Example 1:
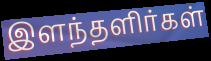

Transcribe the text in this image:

இளந்தளிர்கள்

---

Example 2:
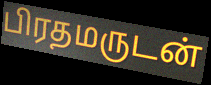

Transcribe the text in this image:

பிரதமருடன்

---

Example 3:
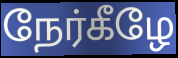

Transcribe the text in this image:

நேர்கீழே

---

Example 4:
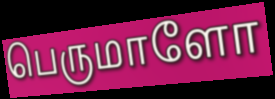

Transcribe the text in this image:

பெருமாளோ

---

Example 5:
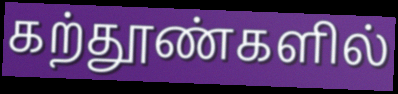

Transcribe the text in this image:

கற்தூண்களில்